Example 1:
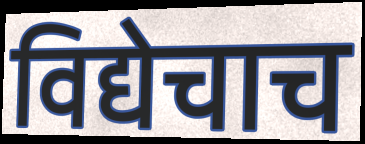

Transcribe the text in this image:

विद्येचाच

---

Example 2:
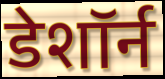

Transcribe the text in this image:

डेशॉर्न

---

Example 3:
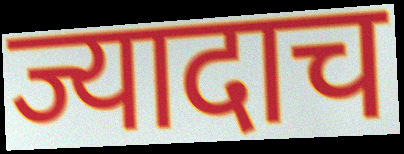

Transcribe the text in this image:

ज्यादाच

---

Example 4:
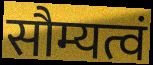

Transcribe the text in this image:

सौम्यत्वं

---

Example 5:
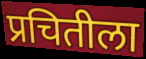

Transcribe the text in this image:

प्रचितीला